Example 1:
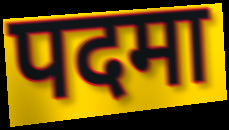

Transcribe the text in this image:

पदमा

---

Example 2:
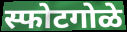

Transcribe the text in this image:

स्फोटगोळे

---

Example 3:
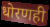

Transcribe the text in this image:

धोरणही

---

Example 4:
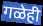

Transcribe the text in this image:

गळेही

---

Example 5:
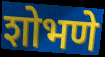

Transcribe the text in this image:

शोभणे